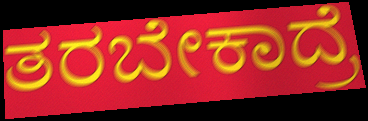
ತರಬೇಕಾದ್ರೆ